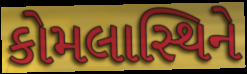
કોમલાસ્થિને